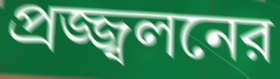
প্রজ্জ্বলনের